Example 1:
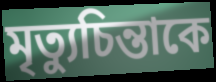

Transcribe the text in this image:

মৃত্যুচিন্তাকে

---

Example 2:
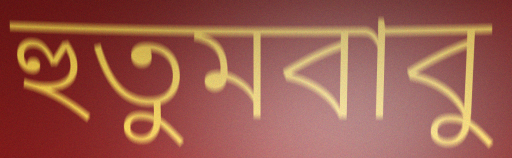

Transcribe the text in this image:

হুতুমবাবু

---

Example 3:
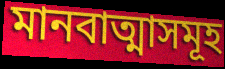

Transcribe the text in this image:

মানবাত্মাসমূহ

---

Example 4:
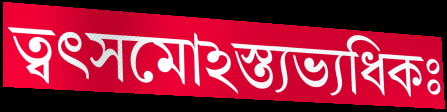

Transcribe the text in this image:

ত্বৎসমোঽস্ত্যভ্যধিকঃ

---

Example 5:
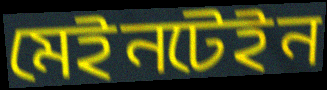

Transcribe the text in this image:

মেইনটেইন